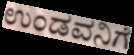
ಉಂಡವನಿಗೆ